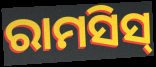
ରାମସିସ୍